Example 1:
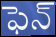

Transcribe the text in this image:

ఫెన్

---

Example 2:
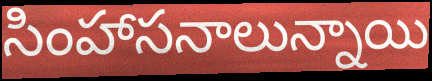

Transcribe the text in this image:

సింహాసనాలున్నాయి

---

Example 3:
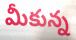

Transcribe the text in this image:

మీకున్న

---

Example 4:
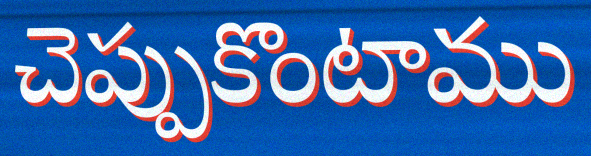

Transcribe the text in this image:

చెప్పుకొంటాము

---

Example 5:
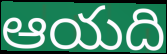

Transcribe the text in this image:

ఆయది